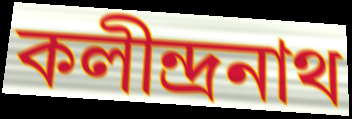
কলীন্দ্রনাথ